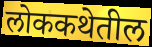
लोककथेतील